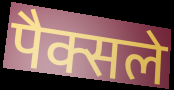
पैक्सले